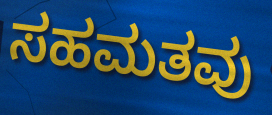
ಸಹಮತವು